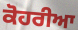
ਕੋਹਰੀਆ